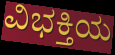
ವಿಭಕ್ತಿಯ